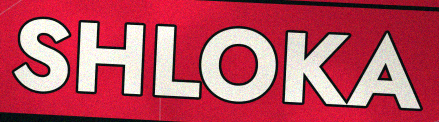
SHLOKA